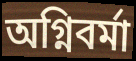
অগ্নিবর্মা